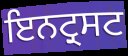
ਇਨਟ੍ਰਸਟ